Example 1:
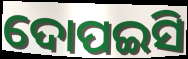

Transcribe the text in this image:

ଦୋପଇସି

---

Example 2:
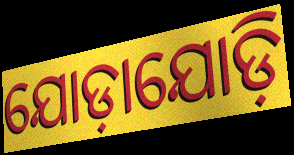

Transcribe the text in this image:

ଯୋଡ଼ାଯୋଡ଼ି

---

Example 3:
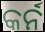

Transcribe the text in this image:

କର୍ନ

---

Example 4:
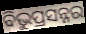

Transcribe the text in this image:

ବିଭୁପ୍ରସନ୍ନର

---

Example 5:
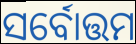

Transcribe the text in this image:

ସର୍ବୋତ୍ତମ